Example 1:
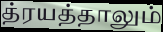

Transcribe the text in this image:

த்ரயத்தாலும்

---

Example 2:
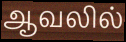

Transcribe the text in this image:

ஆவலில்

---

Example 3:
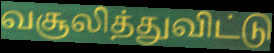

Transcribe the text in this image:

வசூலித்துவிட்டு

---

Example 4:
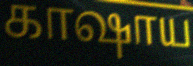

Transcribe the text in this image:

காஷாய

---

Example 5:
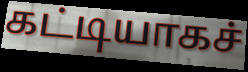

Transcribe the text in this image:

கட்டியாகச்